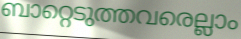
ബാറ്റെടുത്തവരെല്ലാം